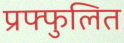
प्रफ्फुलित